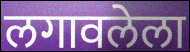
लगावलेला